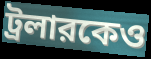
ট্রলারকেও